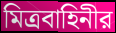
মিত্রবাহিনীর